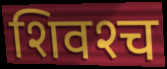
शिवश्च